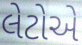
લેટોએ